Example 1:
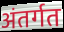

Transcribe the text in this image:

अंतर्गत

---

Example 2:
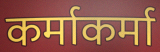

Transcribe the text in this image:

कर्माकर्मा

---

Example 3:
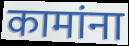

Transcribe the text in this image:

कामांना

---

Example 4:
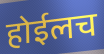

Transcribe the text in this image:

होईलच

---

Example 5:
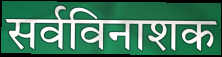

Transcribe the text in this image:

सर्वविनाशक